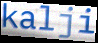
kalji